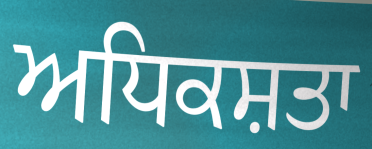
ਅਧਿਕਸ਼ਤਾ